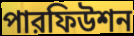
পারফিউশন